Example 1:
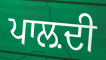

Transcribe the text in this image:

ਪਾਲ਼ਦੀ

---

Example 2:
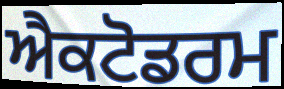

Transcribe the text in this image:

ਐਕਟੋਡਰਮ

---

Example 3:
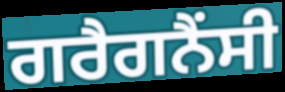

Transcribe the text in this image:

ਗਰੈਗਨੈਂਸੀ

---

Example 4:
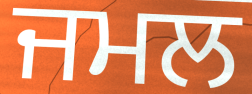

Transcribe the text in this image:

ਜਮਲ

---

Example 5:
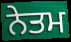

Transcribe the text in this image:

ਨੇਤਮ